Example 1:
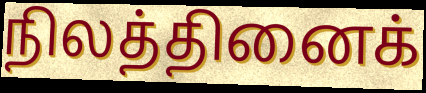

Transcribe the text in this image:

நிலத்தினைக்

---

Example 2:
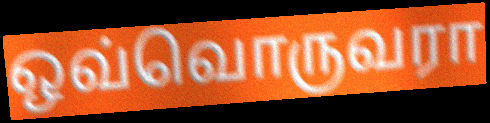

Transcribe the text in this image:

ஒவ்வொருவரா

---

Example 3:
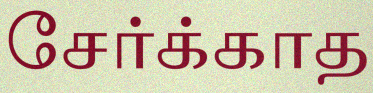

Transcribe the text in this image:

சேர்க்காத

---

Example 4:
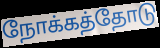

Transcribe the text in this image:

நோக்கத்தோடு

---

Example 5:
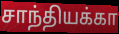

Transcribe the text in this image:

சாந்தியக்கா